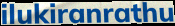
ilukiranrathu